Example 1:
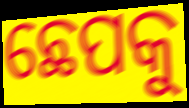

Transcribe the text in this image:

ଛେପକୁ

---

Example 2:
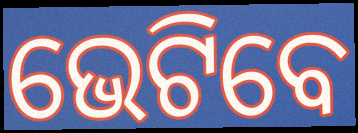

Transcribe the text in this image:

ଭେଟିବେ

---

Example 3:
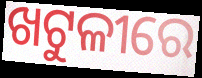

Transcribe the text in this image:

ଖଟୁଳୀରେ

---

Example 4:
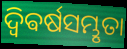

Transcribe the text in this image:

ଦ୍ଵିଵର୍ଷସମ୍ଭୃତା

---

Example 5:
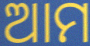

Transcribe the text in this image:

ଆମ